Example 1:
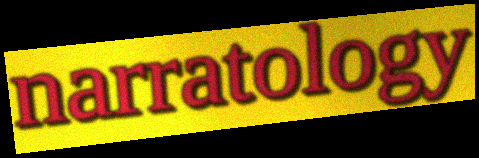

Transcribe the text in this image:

narratology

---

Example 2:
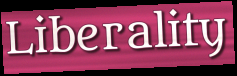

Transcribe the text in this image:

Liberality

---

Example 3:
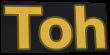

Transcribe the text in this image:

Toh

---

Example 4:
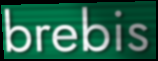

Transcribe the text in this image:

brebis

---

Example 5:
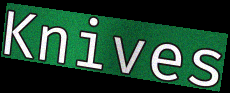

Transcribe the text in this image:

Knives